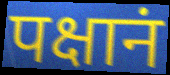
पक्षानं